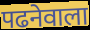
पढनेवाला